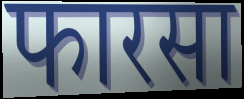
फारसा